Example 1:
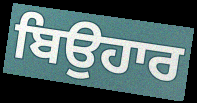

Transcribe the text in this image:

ਬਿਉਹਾਰ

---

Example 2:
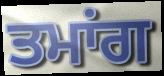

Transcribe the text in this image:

ਤਮਾਂਗ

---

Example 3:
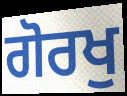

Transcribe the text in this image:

ਗੋਰਖੁ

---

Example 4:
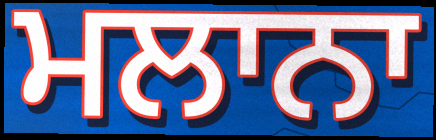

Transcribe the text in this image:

ਮਲਾਨਾ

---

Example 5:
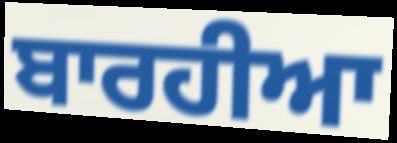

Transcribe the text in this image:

ਬਾਰਹੀਆ